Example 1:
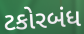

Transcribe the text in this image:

ટકોરબંધ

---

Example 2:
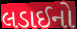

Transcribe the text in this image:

લડાઈનો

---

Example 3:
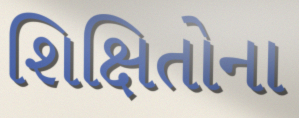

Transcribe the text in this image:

શિક્ષિતોના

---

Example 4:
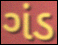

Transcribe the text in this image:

ગંડ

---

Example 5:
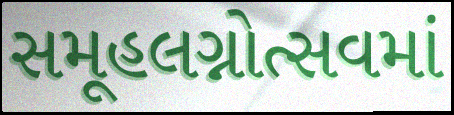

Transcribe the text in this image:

સમૂહલગ્નોત્સવમાં